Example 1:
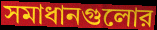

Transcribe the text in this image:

সমাধানগুলোর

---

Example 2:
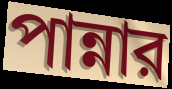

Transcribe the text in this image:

পান্নার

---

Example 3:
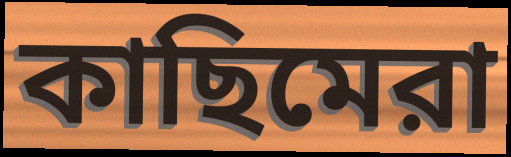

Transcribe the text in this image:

কাছিমেরা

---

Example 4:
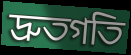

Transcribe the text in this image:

দ্রুতগতি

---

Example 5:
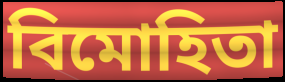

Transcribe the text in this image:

বিমোহিতা